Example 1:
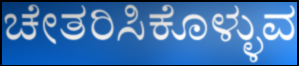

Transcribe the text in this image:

ಚೇತರಿಸಿಕೊಳ್ಳುವ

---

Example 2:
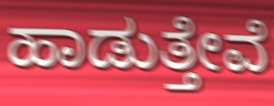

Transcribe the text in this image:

ಹಾಡುತ್ತೇವೆ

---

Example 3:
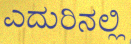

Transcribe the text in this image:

ಎದುರಿನಲ್ಲಿ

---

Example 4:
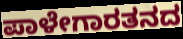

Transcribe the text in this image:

ಪಾಳೇಗಾರತನದ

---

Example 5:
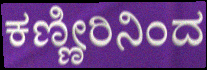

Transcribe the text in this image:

ಕಣ್ಣೀರಿನಿಂದ